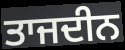
ਤਾਜਦੀਨ